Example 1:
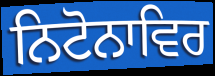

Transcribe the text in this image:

ਨਿਟੋਨਾਵਿਰ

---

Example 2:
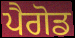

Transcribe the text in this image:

ਪੈਗੋਡ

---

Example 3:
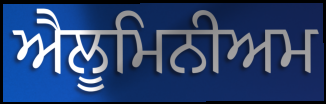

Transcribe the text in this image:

ਐਲੂਮਿਨੀਅਮ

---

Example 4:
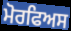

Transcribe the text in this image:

ਮੋਰਫਿਅਸ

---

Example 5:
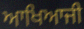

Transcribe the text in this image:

ਆਖਿਆਜੀ